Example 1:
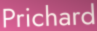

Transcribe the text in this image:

Prichard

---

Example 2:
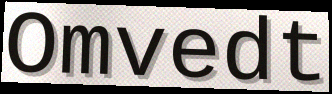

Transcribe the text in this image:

Omvedt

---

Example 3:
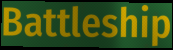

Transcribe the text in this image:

Battleship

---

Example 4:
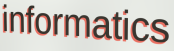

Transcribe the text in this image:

informatics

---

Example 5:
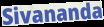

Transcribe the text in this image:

Sivananda